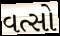
વત્સો